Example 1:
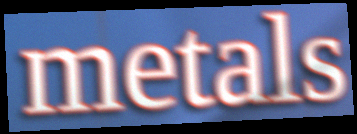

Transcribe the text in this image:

metals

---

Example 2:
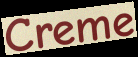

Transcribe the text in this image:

Creme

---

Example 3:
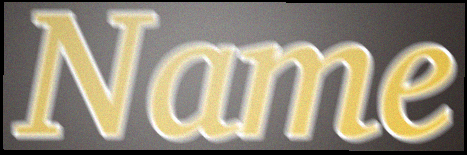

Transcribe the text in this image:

Name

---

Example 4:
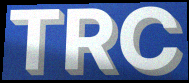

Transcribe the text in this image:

TRC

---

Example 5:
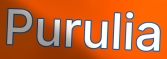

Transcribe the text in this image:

Purulia